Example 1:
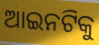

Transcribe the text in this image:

ଆଇନଟିକୁ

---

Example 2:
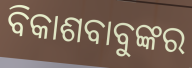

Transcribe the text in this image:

ବିକାଶବାବୁଙ୍କର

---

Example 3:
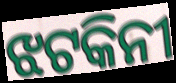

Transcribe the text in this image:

ଝଟକିନୀ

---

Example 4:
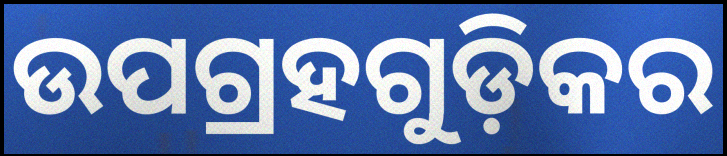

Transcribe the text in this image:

ଉପଗ୍ରହଗୁଡ଼ିକର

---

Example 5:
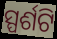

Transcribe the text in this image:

ସ୍ପର୍ଶଟି